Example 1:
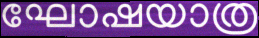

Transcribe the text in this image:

ഘോഷയാത്ര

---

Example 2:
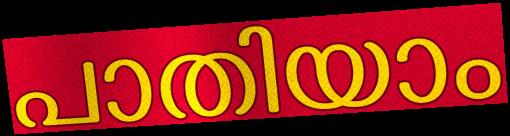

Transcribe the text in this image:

പാതിയാം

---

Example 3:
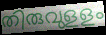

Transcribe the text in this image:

തിരുവുളളം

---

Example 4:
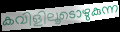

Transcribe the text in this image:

കവിളിലൂടൊഴുകുന്ന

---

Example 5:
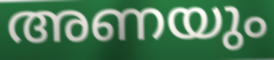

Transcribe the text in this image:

അണയും